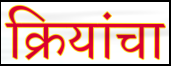
क्रियांचा